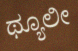
ಥ್ಯೂಲೀ